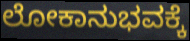
ಲೋಕಾನುಭವಕ್ಕೆ